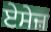
ਏਸੇਜ਼